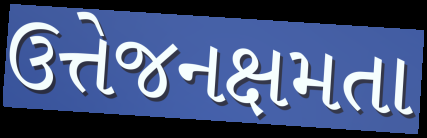
ઉત્તેજનક્ષમતા